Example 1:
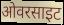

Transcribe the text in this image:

ओवरसाइट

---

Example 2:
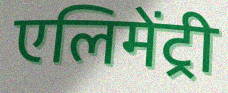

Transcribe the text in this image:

एलिमेंट्री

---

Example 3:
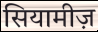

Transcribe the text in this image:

सियामीज़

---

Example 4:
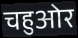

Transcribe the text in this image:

चहुओर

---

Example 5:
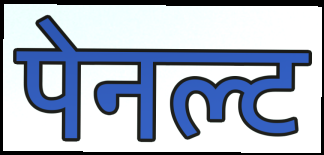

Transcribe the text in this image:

पेनल्ट